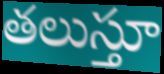
తలుస్తూ